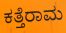
ಕತ್ತೆರಾಮ